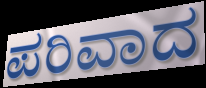
ಪರಿವಾದ